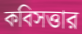
কবিসত্তার